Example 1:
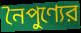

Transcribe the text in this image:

নৈপুণ্যের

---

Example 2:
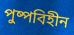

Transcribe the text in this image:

পুষ্পবিহীন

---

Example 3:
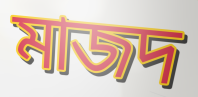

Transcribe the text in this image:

মাজদ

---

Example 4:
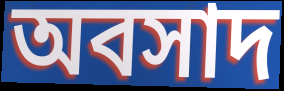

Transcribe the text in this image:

অবসাদ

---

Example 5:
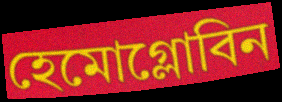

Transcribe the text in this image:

হেমোগ্লোবিন